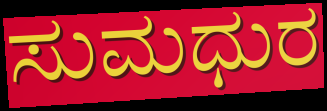
ಸುಮಧುರ